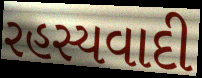
રહસ્યવાદી